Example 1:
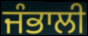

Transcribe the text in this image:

ਜੰਭਾਲੀ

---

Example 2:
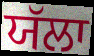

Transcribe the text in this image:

ਯੱਲਾ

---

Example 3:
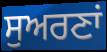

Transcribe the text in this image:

ਸੁਅਰਣਾਂ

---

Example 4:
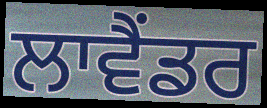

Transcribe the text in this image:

ਲਾਵੈਂਡਰ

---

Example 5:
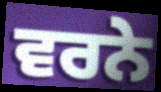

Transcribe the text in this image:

ਵਰਨੇ